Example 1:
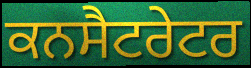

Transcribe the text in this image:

ਕਨਸੈਟਰੇਟਰ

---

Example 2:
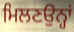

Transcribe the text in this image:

ਮਿਲਣਉਨ੍ਹਾਂ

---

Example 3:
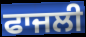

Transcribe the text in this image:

ਫਾਜਲੀ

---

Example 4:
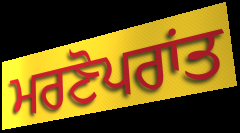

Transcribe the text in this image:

ਮਰਣੋਪਰਾਂਤ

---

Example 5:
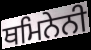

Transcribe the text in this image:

ਥਮਿਨੇਨੀ